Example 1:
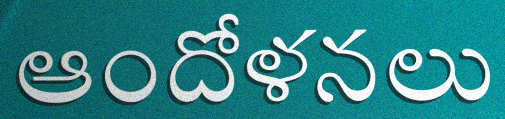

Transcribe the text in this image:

ఆందోళనలు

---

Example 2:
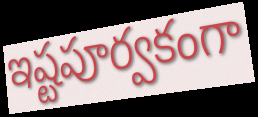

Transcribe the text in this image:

ఇష్టపూర్వకంగా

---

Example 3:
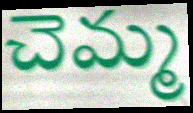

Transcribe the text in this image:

చెమ్మ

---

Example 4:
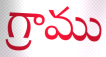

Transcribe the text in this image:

గ్రాము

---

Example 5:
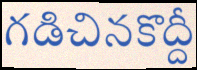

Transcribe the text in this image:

గడిచినకొద్దీ